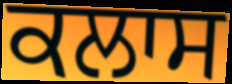
ਕਲਾਸ